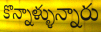
కొన్నాళ్ళున్నారు